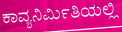
ಕಾವ್ಯನಿರ್ಮಿತಿಯಲ್ಲಿ